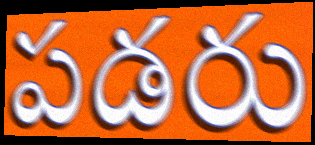
పడరు